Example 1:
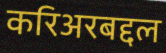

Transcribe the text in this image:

करिअरबद्दल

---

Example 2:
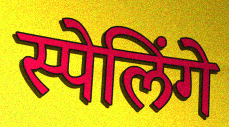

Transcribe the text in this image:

स्पेलिंगे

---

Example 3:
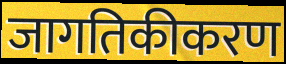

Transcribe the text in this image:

जागतिकीकरण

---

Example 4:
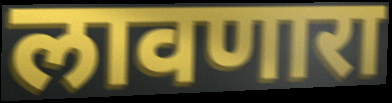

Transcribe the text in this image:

लावणारा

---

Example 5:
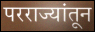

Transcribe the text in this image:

परराज्यांतून